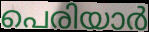
പെരിയാർ